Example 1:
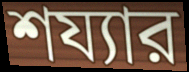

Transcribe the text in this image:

শয্যার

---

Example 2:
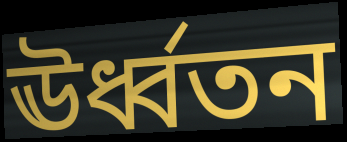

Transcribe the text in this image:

ঊর্ধ্বতন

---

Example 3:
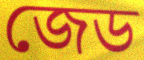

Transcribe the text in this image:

জেড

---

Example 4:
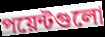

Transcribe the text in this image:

পয়েন্টগুলো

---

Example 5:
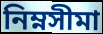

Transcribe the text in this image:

নিম্নসীমা